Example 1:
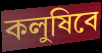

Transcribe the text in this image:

কলুষিবে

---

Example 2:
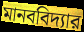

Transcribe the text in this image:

মানববিদ্যার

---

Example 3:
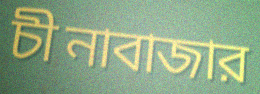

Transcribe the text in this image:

চীনাবাজার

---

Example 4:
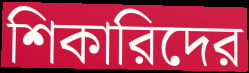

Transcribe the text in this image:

শিকারিদের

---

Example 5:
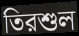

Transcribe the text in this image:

তিরশুল